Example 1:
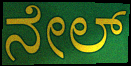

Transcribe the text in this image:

ನೇಲ್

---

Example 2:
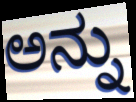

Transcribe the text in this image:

ಅನ್ನು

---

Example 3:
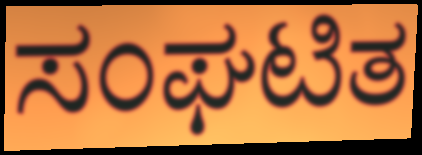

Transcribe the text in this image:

ಸಂಘಟಿತ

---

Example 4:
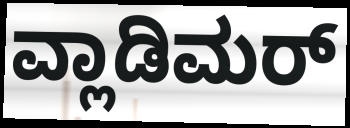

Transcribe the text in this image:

ವ್ಲಾಡಿಮರ್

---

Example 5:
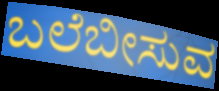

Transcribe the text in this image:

ಬಲೆಬೀಸುವ